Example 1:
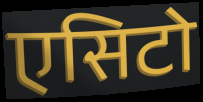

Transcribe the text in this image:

एसिटो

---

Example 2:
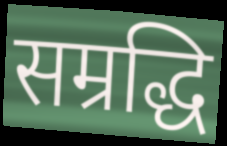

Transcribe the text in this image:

सम्रद्धि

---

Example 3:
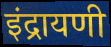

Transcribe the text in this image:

इंद्रायणी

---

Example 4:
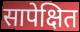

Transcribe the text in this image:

सापेक्षित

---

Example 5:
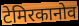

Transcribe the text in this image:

टेमिरकानोव